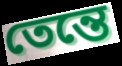
তেন্তে